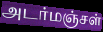
அடர்மஞ்சள்